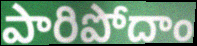
పారిపోదాం